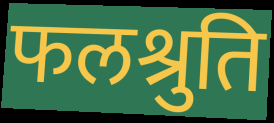
फलश्रुति